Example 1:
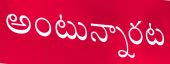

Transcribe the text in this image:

అంటున్నారట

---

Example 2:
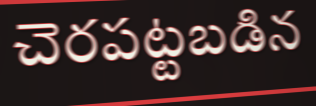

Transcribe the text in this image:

చెరపట్టబడిన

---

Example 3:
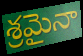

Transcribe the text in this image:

శ్రమైనా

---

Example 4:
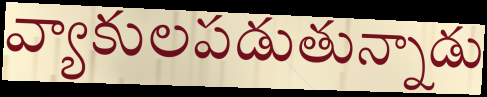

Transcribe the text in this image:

వ్యాకులపడుతున్నాడు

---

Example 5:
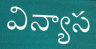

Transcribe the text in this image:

విన్యాస